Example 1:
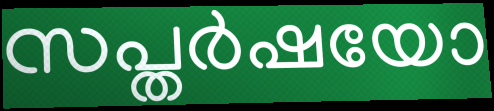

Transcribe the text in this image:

സപ്തർഷയോ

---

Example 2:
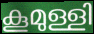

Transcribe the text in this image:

കൂമുള്ളി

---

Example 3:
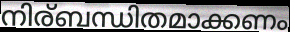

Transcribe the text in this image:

നിര്ബന്ധിതമാക്കണം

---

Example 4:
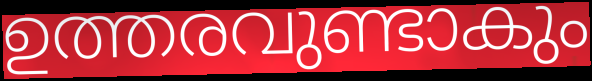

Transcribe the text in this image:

ഉത്തരവുണ്ടാകും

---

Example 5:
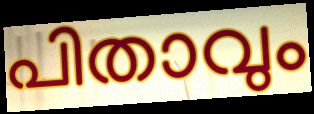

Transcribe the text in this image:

പിതാവും